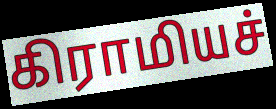
கிராமியச்